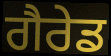
ਗੈਰੇਡ